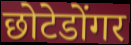
छोटेडोंगर